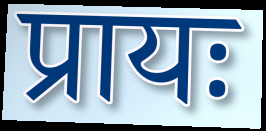
प्रायः